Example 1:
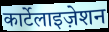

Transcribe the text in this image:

कार्टेलाइज़ेशन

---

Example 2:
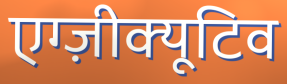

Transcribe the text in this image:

एग्ज़ीक्यूटिव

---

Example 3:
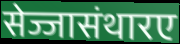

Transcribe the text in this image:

सेज्जासंथारए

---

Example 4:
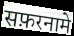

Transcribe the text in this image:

सफ़रनामे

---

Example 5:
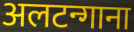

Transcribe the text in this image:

अलटन्गाना